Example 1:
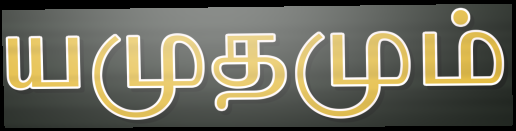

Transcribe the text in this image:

யமுதமும்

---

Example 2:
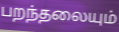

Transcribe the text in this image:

பறந்தலையும்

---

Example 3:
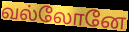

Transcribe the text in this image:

வல்லோனே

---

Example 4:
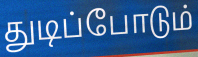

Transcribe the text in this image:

துடிப்போடும்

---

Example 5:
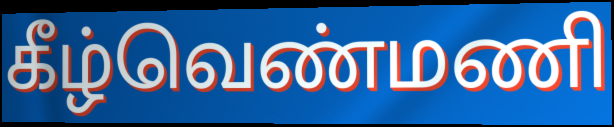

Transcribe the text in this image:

கீழ்வெண்மணி